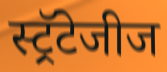
स्ट्रॅटेजीज